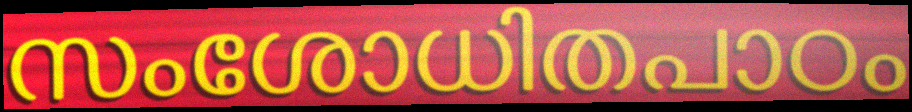
സംശോധിതപാഠം